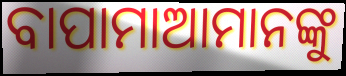
ବାପାମାଆମାନଙ୍କୁ